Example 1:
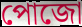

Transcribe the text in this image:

পোজো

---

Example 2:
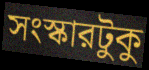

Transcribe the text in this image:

সংস্কারটুকু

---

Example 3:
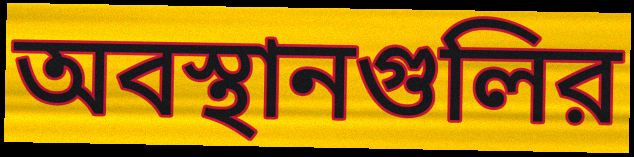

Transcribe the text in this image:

অবস্থানগুলির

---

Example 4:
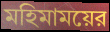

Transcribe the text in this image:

মহিমাময়ের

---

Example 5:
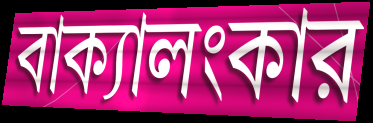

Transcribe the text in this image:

বাক্যালংকার